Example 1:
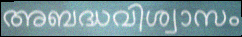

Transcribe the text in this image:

അബദ്ധവിശ്വാസം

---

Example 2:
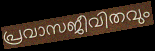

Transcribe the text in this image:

പ്രവാസജീവിതവും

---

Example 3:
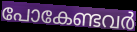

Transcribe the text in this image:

പോകേണ്ടവർ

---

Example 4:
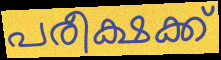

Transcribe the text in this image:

പരീക്ഷക്ക്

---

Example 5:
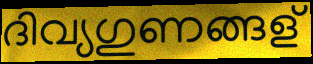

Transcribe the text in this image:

ദിവ്യഗുണങ്ങള്